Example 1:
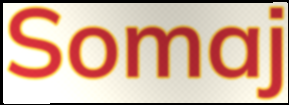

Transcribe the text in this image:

Somaj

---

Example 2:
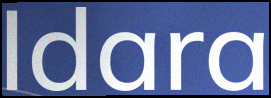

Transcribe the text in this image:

Idara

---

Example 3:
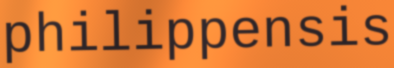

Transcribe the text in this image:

philippensis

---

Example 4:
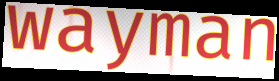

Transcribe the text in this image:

wayman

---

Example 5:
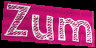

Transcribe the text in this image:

Zum